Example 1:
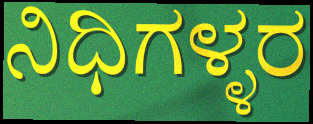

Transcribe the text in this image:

ನಿಧಿಗಳ್ಳರ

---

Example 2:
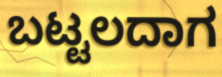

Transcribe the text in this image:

ಬಟ್ಟಲದಾಗ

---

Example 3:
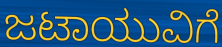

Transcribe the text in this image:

ಜಟಾಯುವಿಗೆ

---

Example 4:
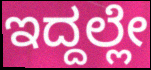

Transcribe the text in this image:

ಇದ್ದಲ್ಲೇ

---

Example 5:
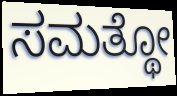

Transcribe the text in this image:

ಸಮತ್ಥೋ